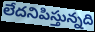
లేదనిపిస్తున్నది